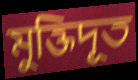
মুক্তিদূত